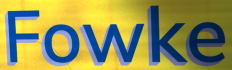
Fowke